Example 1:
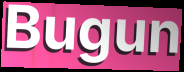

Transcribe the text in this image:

Bugun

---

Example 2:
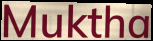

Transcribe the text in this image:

Muktha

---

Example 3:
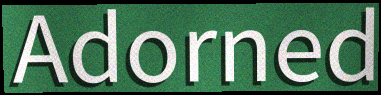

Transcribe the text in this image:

Adorned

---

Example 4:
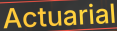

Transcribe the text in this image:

Actuarial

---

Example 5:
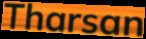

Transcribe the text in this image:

Tharsan